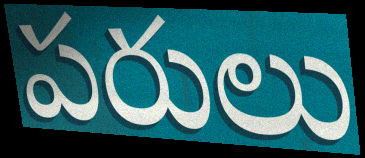
పరులు